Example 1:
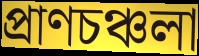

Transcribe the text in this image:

প্রাণচঞ্চলা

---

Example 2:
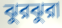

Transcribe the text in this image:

ঝুরঝুরা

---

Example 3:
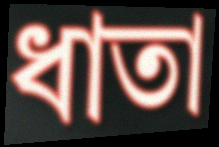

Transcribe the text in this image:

ধাতা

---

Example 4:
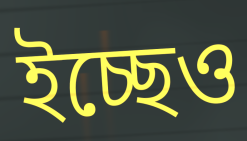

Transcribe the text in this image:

ইচ্ছেও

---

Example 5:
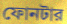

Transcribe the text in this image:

ফোনটার